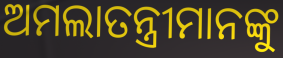
ଅମଲାତନ୍ତ୍ରୀମାନଙ୍କୁ